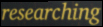
researching